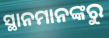
ସ୍ଥାନମାନଙ୍କରୁ